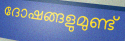
ദോഷങ്ങളുമുണ്ട്